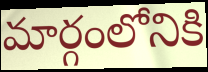
మార్గంలోనికి